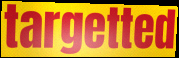
targetted